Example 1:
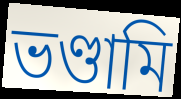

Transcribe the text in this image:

ভণ্ডামি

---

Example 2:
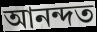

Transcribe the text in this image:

আনন্দত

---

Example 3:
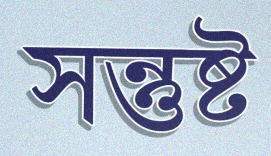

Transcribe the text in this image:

সন্তুষ্ট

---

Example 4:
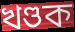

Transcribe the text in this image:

খণ্ডক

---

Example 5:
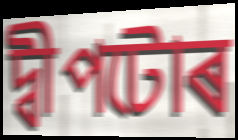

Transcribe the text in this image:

দ্বীপটোৰ